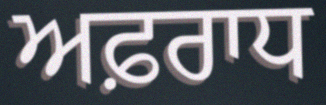
ਅਫ਼ਰਾਧ